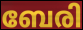
ബേരി